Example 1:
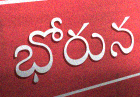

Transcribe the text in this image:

భోరున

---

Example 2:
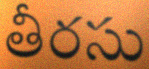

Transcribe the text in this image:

తీరసు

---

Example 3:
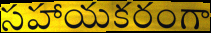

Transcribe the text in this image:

సహాయకరంగా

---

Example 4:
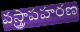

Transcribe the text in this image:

వస్త్రాపహరణ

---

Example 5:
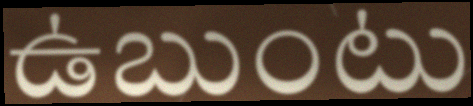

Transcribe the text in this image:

ఉబుంటు